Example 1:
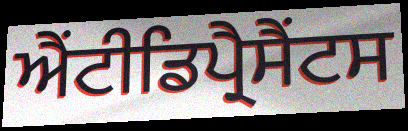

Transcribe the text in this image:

ਐਂਟੀਡਿਪ੍ਰੈਸੈਂਟਸ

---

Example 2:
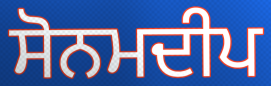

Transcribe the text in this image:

ਸੋਨਮਦੀਪ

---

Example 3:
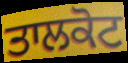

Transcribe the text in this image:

ਤਾਲਕੋਟ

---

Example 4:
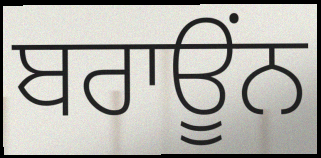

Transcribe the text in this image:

ਬਰਾਊਂਨ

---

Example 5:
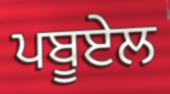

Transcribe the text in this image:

ਪਬੂਏਲ